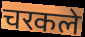
चरकले